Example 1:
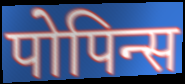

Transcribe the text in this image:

पोपिन्स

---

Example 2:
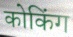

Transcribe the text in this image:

कोकिंग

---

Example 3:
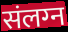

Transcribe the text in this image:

संलग्‍न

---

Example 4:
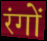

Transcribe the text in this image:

रंगों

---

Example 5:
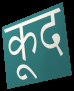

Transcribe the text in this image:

कूद